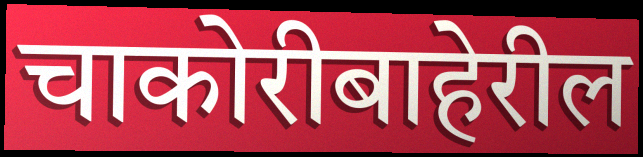
चाकोरीबाहेरील